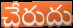
చేరుదు